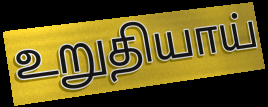
உறுதியாய்